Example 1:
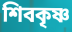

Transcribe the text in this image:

শিবকৃষ্ণ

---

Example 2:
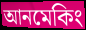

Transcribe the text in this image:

আনমেকিং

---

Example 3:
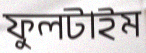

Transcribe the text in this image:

ফুলটাইম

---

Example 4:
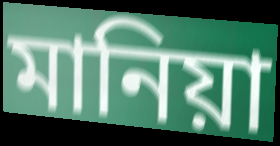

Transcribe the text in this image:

মানিয়া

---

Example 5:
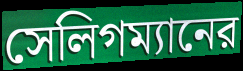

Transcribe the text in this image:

সেলিগম্যানের